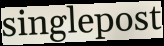
singlepost